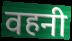
वहनी